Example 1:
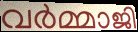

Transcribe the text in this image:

വർമ്മാജി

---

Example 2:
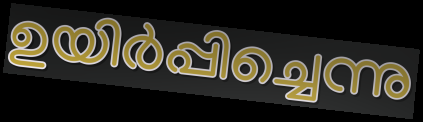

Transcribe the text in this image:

ഉയിർപ്പിച്ചെന്നു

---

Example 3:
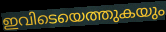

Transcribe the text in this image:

ഇവിടെയെത്തുകയും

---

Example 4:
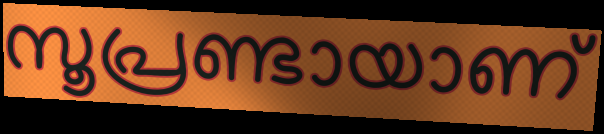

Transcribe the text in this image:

സൂപ്രണ്ടായാണ്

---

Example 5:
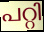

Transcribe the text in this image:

പറ്റി